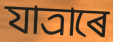
যাত্ৰাৰে